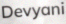
Devyani